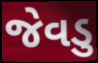
જેવડુ